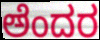
ಅೆಂದರ